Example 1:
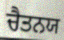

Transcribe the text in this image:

ਚੈਤਨਯ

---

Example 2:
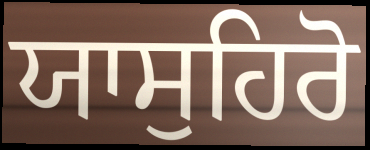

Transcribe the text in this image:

ਯਾਸੁਹਿਰੋ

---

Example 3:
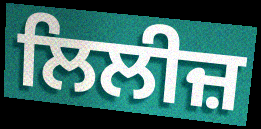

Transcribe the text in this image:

ਲਿਲੀਜ਼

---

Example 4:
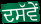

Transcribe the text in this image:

ਦਸੱਵੇਂ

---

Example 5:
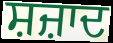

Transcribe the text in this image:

ਸ਼ਜ਼ਾਦ